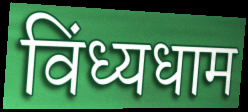
विंध्यधाम